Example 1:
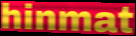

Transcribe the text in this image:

hinmat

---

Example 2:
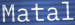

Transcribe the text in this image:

Matal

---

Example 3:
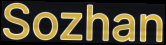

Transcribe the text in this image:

Sozhan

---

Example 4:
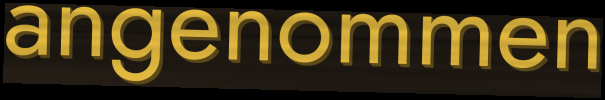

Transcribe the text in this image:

angenommen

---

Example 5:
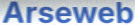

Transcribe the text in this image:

Arseweb